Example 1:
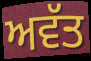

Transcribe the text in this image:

ਅਵੱਤ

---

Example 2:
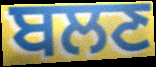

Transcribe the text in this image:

ਬਲਣ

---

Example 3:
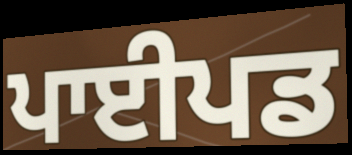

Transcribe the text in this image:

ਪਾਈਪਡ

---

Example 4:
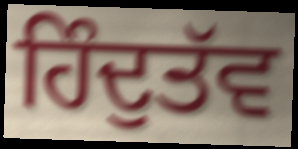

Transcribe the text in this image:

ਹਿੰਦੁਤੱਵ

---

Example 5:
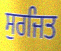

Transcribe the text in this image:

ਸੁਰਜਿਤ